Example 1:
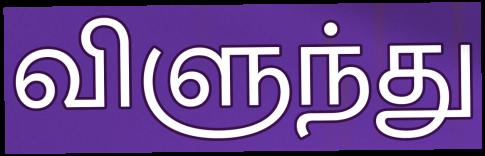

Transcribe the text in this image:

விளுந்து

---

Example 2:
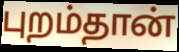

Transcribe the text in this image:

புறம்தான்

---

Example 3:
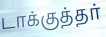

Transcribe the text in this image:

டாக்குத்தர்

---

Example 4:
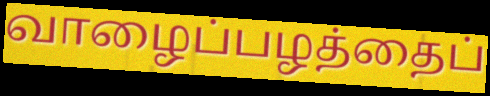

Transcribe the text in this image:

வாழைப்பழத்தைப்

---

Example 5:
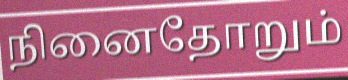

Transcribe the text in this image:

நினைதோறும்